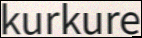
kurkure